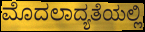
ಮೊದಲಾದ್ಯತೆಯಲ್ಲಿ